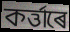
কৰ্ত্তাৰে